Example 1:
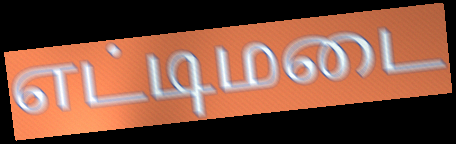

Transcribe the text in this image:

எட்டிமடை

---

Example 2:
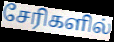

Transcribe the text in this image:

சேரிகளில்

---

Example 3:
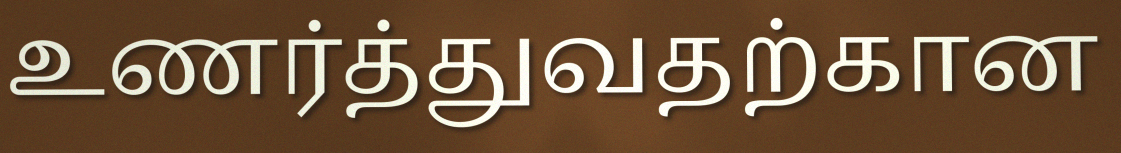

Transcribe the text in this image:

உணர்த்துவதற்கான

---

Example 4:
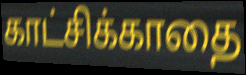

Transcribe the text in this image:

காட்சிக்காதை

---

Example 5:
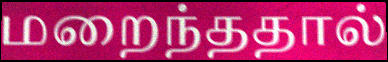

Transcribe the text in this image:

மறைந்ததால்